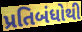
પ્રતિબંધોથી